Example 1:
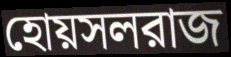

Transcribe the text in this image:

হোয়সলরাজ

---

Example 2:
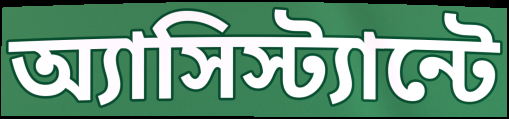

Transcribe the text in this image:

অ্যাসিস্ট্যান্টে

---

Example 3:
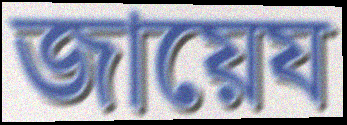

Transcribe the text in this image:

জায়েয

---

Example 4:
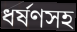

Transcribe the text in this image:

ধর্ষণসহ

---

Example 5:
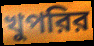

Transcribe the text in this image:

খুপরির